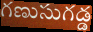
గణుసుగడ్డ